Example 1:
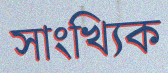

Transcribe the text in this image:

সাংখ্যিক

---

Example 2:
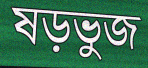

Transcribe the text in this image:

ষড়ভুজ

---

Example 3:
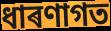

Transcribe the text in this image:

ধাৰণাগত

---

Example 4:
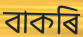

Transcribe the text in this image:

বাকৰি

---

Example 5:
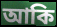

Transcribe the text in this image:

আকি